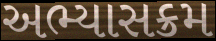
અભ્યાસક્રમ